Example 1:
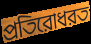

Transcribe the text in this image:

প্রতিরোধরত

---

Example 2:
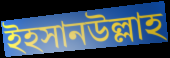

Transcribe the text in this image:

ইহসানউল্লাহ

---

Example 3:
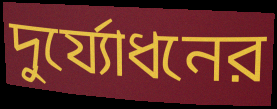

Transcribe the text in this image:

দুর্য্যোধনের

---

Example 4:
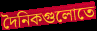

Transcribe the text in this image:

দৈনিকগুলোতে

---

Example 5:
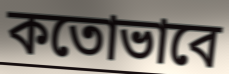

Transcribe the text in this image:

কতোভাবে